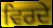
ਵਿਰਦੇ